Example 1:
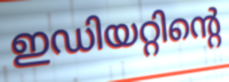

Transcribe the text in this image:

ഇഡിയറ്റിന്റെ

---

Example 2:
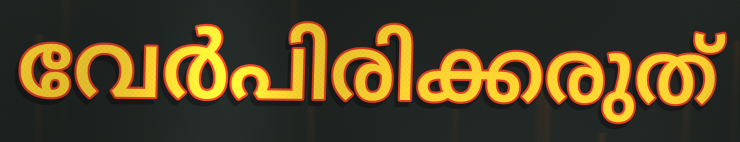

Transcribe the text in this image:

വേർപിരിക്കരുത്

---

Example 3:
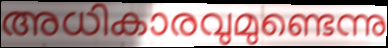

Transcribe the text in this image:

അധികാരവുമുണ്ടെന്നു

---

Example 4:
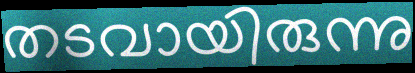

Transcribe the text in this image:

തടവായിരുന്നു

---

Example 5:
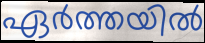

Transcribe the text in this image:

ഏർത്തയിൽ